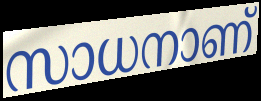
സാധനാണ്